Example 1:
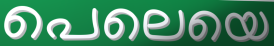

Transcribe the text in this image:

പെലെയെ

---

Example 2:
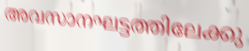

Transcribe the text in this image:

അവസാനഘട്ടത്തിലേക്കു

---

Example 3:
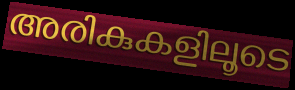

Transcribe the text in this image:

അരികുകളിലൂടെ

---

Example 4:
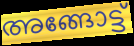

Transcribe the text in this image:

അങ്ങോട്ട്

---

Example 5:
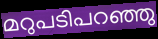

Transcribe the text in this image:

മറുപടിപറഞ്ഞു